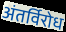
अंतर्विरोध